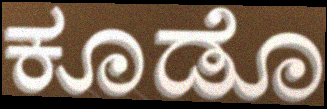
ಕೂಡೊ